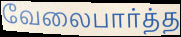
வேலைபார்த்த